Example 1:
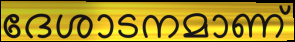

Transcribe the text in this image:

ദേശാടനമാണ്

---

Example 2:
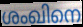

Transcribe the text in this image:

ശംഖിനെ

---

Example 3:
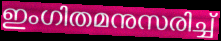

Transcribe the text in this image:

ഇംഗിതമനുസരിച്ച്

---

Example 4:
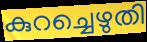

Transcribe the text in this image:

കുറച്ചെഴുതി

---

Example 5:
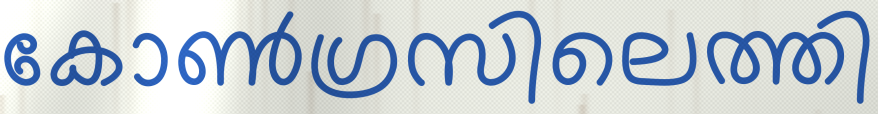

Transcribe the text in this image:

കോൺഗ്രസിലെത്തി